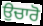
ਉਚਾਰੋ